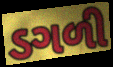
ડગળી